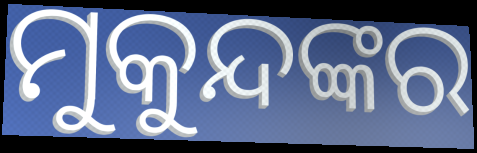
ମୁକୁନ୍ଦଙ୍କର